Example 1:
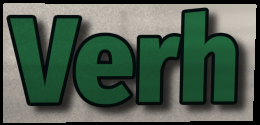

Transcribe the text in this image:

Verh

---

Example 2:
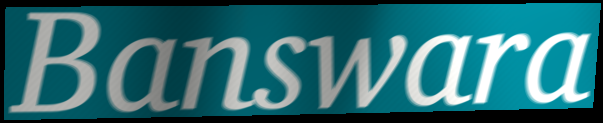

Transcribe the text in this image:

Banswara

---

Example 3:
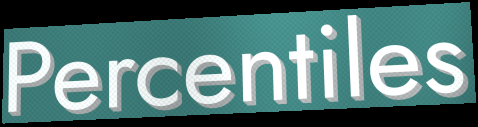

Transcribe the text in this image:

Percentiles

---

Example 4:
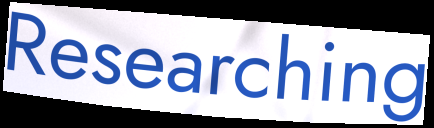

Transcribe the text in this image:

Researching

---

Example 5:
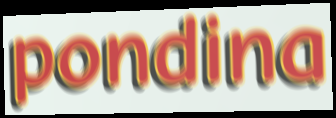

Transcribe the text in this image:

pondina